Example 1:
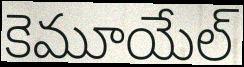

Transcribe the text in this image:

కెమూయేల్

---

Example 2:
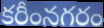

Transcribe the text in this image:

కరీంనగరం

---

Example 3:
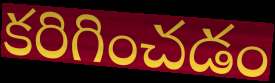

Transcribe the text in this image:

కరిగించడం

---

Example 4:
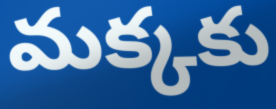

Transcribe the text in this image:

మక్కకు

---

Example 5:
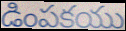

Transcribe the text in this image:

డింపకయు